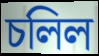
চলিল